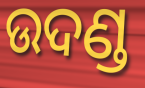
ଉଦଣ୍ଡ